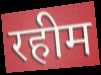
रहीम